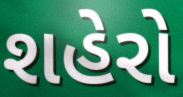
શહેરો